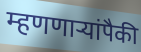
म्हणणाऱ्यांपैकी